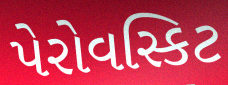
પેરોવસ્કિટ